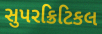
સુપરક્રિટિકલ